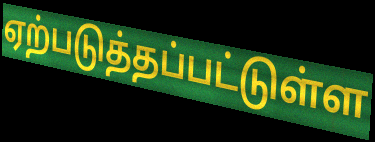
ஏற்படுத்தப்பட்டுள்ள